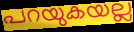
പറയുകയല്ല